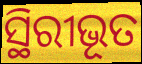
ସ୍ଥିରୀଭୂତ